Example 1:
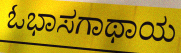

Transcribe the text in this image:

ಓಭಾಸಗಾಥಾಯ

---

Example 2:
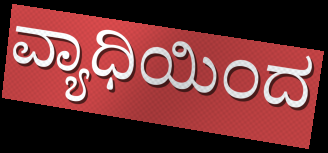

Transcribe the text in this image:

ವ್ಯಾಧಿಯಿಂದ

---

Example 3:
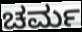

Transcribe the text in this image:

ಚರ್ಮ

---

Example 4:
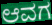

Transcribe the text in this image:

ಆವಗ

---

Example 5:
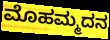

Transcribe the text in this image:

ಮೊಹಮ್ಮದನ